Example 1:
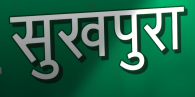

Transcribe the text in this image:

सुखपुरा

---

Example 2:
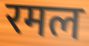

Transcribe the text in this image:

रमल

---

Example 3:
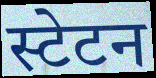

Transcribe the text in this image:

स्टेटन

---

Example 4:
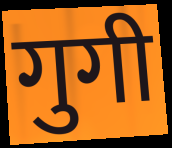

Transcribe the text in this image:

गुगी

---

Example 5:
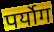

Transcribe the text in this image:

पर्योग